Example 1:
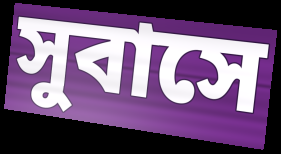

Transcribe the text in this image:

সুবাসে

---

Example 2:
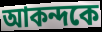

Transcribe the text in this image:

আকন্দকে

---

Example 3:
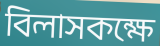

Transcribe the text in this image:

বিলাসকক্ষে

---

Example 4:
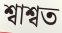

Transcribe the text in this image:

শ্বাশ্বত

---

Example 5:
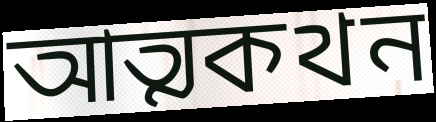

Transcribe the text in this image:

আত্মকথন